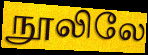
நூலிலே